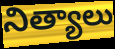
నిత్యాలు